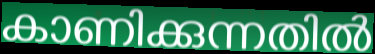
കാണിക്കുന്നതിൽ